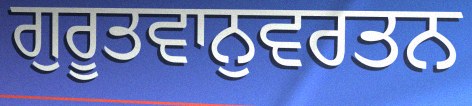
ਗੁਰੂਤਵਾਨੁਵਰਤਨ